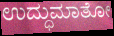
ಉದ್ಧುಮಾತೋ